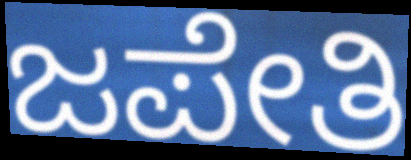
ಜಪೇತಿ